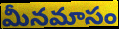
మీనమాసం